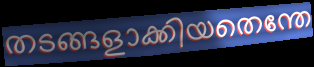
തടങ്ങളാക്കിയതെന്തേ